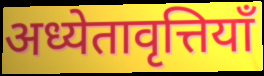
अध्येतावृत्तियाँ